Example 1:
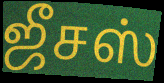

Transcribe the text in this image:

ஜீசஸ்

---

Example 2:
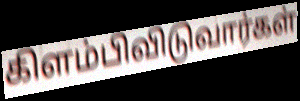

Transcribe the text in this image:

கிளம்பிவிடுவார்கள்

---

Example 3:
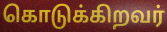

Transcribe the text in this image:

கொடுக்கிறவர்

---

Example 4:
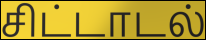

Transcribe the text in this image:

சிட்டாடல்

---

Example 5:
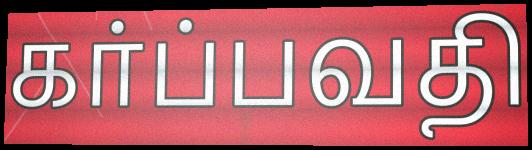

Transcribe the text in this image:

கர்ப்பவதி